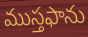
ముస్తఫాను